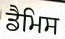
ਡੈਮਿਸ